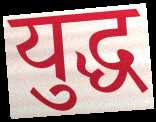
युद्ध